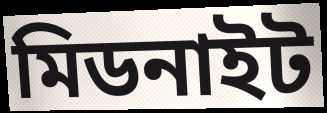
মিডনাইট